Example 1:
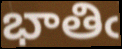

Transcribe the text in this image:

భాతిఁ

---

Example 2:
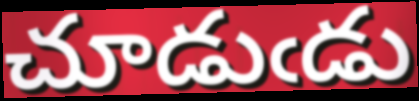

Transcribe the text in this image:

చూడుఁడు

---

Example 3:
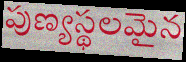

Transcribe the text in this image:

పుణ్యస్థలమైన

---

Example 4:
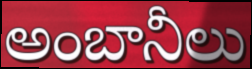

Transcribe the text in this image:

అంబానీలు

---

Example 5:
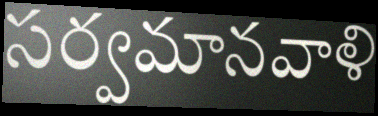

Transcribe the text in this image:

సర్వమానవాళి